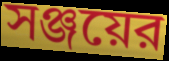
সঞ্জয়ের